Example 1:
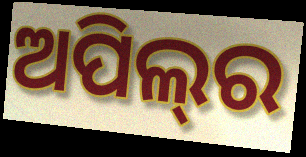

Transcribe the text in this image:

ଅପିଲ୍‌ର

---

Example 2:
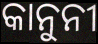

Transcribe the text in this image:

କାନୁନୀ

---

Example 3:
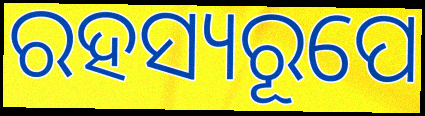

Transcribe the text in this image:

ରହସ୍ୟରୂପେ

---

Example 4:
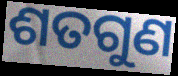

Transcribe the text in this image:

ଶତଗୁଣ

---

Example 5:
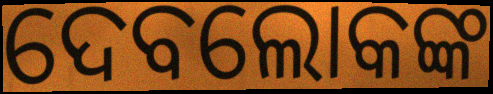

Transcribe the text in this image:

ଦେବଲୋକଙ୍କ